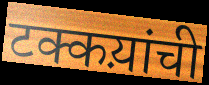
टक्कय़ांची